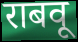
राबवू